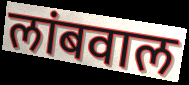
लांबवाल